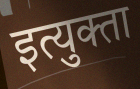
इत्युक्ता